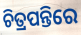
ଚିତ୍ରପନ୍ତିରେ